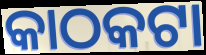
କାଠକଟା